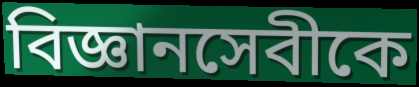
বিজ্ঞানসেবীকে